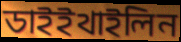
ডাইইথাইলিন